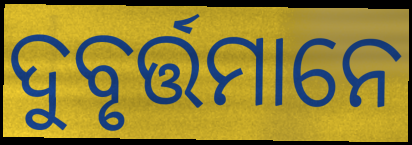
ଦୁବୃର୍ତ୍ତମାନେ